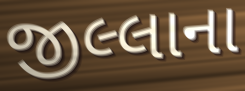
જીલ્લાના